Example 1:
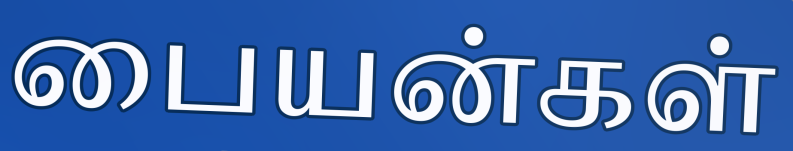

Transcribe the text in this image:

பையன்கள்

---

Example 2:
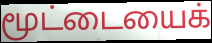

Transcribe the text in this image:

மூட்டையைக்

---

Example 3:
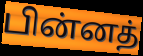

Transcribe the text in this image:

பின்னத்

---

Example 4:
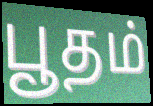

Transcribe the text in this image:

பூதம்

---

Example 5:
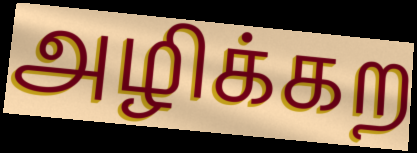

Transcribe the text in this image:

அழிக்கற